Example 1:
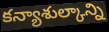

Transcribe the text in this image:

కన్యాశుల్కాన్ని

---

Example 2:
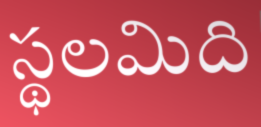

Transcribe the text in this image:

స్థలమిది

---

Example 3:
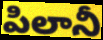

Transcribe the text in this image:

పిలానీ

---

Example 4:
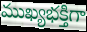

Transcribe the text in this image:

ముఖ్యభక్తిగా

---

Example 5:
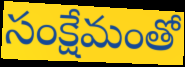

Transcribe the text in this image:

సంక్షేమంతో